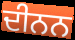
ਦੀਨਨ